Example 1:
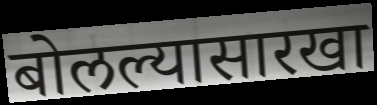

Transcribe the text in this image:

बोलल्यासारखा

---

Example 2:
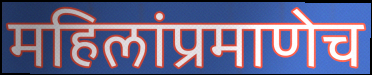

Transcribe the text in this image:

महिलांप्रमाणेच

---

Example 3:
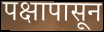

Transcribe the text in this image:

पक्षापासून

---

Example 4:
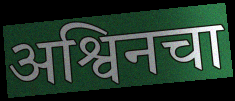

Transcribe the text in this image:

अश्विनचा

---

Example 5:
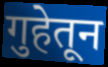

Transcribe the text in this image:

गुहेतून